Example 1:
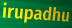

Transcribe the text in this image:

irupadhu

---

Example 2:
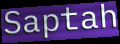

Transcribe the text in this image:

Saptah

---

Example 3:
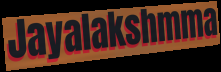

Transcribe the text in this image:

Jayalakshmma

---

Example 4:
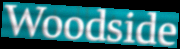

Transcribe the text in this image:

Woodside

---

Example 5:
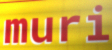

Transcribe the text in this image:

muri